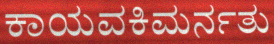
ಕಾಯವಕಿಮರ್ನತು